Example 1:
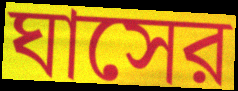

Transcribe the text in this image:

ঘাসের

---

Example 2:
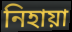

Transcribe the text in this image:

নিহায়া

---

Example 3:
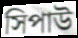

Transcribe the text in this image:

সিপাউ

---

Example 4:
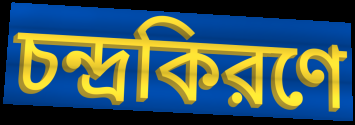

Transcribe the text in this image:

চন্দ্রকিরণে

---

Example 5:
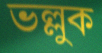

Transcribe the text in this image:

ভল্লুক